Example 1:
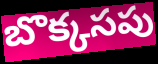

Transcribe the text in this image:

బొక్కసపు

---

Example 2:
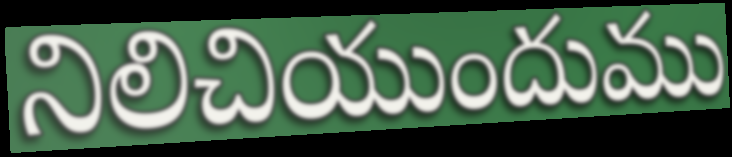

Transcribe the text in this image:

నిలిచియుందుము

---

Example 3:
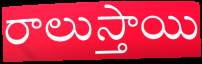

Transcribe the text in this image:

రాలుస్తాయి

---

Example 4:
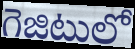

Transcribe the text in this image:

గెజిటులో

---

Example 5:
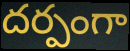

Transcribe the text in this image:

దర్పంగా